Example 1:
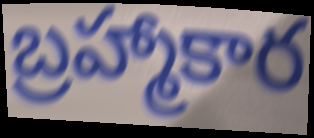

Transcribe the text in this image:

బ్రహ్మాకార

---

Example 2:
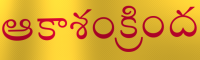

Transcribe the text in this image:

ఆకాశంక్రింద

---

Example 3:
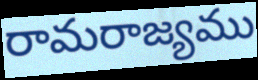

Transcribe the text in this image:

రామరాజ్యము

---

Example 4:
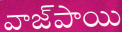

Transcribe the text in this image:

వాజ్‌పాయి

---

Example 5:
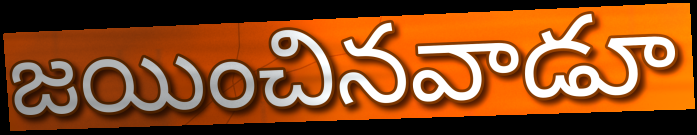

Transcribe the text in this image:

జయించినవాడూ